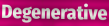
Degenerative